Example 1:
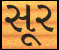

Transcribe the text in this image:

સૂર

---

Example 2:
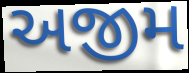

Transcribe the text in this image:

અજીમ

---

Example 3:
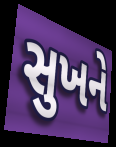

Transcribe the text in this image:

સુખને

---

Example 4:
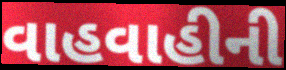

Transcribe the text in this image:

વાહવાહીની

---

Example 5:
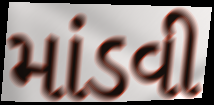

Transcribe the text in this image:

માંડવી